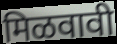
मिळवावी